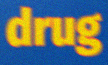
drug